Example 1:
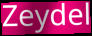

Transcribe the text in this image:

Zeydel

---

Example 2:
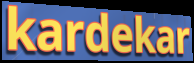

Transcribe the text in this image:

kardekar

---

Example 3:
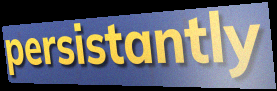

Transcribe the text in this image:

persistantly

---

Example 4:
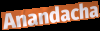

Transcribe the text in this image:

Anandacha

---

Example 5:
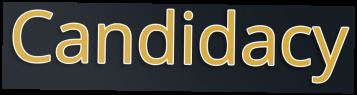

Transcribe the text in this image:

Candidacy